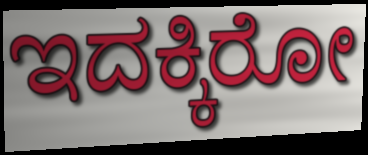
ಇದಕ್ಕಿರೋ